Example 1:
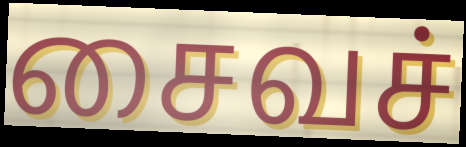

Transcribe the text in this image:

சைவச்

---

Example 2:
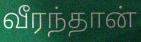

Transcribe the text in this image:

வீரந்தான்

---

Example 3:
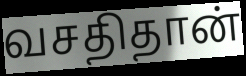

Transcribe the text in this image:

வசதிதான்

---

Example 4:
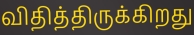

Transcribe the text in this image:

விதித்திருக்கிறது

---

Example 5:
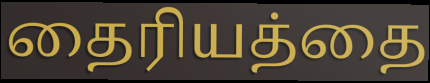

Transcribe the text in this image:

தைரியத்தை